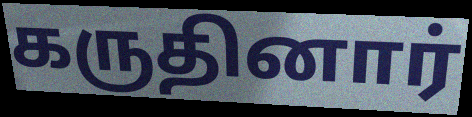
கருதினார்